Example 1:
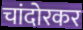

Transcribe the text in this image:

चांदोरकर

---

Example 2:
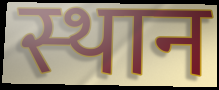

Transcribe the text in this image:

स्थान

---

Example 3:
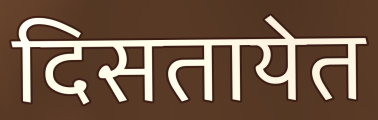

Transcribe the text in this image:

दिसतायेत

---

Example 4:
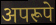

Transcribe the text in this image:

अपरूपे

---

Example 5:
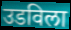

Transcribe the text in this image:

उडविला